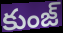
కుంజ్